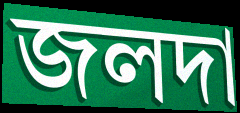
জলদা